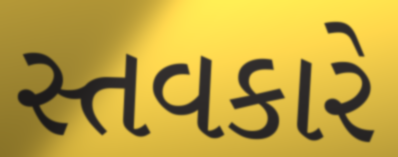
સ્તવકારે